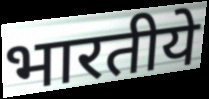
भारतीये